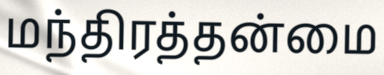
மந்திரத்தன்மை